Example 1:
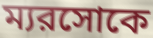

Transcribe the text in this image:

ম্যরসোকে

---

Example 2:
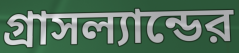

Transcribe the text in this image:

গ্রাসল্যান্ডের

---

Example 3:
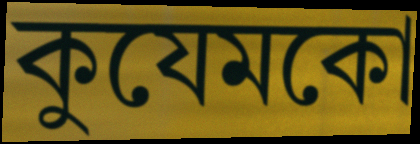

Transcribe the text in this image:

কুযেমকো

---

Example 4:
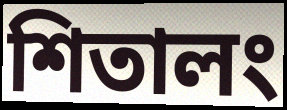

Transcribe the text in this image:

শিতালং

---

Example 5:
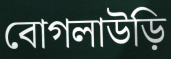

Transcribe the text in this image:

বোগলাউড়ি